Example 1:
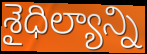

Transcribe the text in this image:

శైధిల్యాన్ని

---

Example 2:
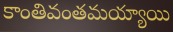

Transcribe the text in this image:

కాంతివంతమయ్యాయి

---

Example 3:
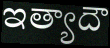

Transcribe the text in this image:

ఇత్యాదౌ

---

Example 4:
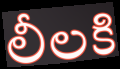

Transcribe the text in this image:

లీలకి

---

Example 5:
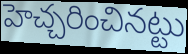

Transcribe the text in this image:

హెచ్చరించినట్టు